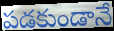
పడకుండానే